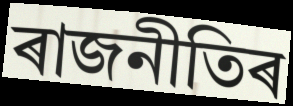
ৰাজনীতিৰ